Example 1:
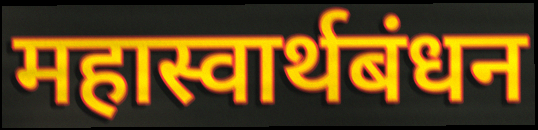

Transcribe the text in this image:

महास्वार्थबंधन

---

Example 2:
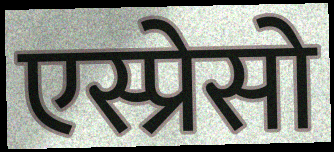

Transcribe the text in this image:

एस्प्रेसो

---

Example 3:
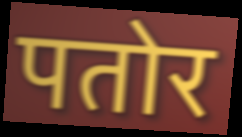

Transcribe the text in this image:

पतोर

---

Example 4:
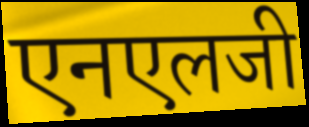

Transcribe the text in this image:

एनएलजी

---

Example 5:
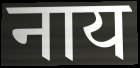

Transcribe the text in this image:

नाय